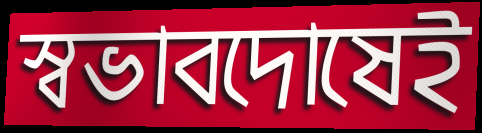
স্বভাবদোষেই